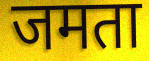
जमता